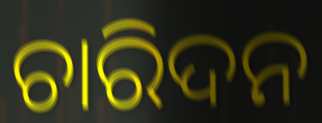
ଚାରିଦନ